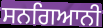
ਸਨਗਿਆਨੀ